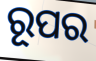
ରୂପର